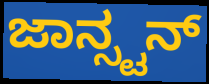
ಜಾನ್ಸ್ಟನ್